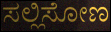
ಸಲ್ಲಿಸೋಣ